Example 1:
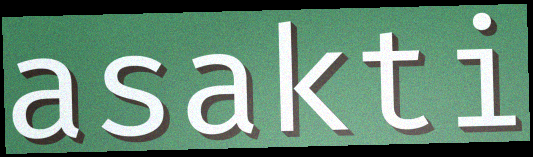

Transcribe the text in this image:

asakti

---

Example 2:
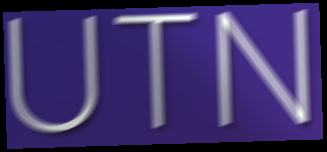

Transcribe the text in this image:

UTN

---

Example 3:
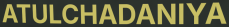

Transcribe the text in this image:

ATULCHADANIYA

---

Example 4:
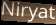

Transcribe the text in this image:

Niryat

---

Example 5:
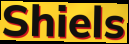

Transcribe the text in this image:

Shiels